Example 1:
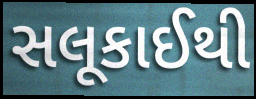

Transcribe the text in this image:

સલૂકાઈથી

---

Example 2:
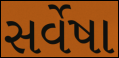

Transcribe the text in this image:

સર્વેષા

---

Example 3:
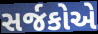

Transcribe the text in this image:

સર્જકોએ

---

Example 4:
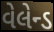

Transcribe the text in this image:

વેલેન્ડ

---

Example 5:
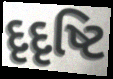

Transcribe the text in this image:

દૃદૃષ્ટિ